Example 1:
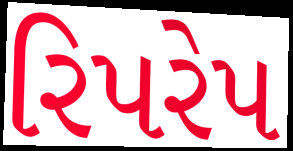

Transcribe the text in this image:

રિપરેપ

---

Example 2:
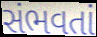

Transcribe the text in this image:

સંભવતાં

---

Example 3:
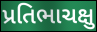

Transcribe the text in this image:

પ્રતિભાચક્ષુ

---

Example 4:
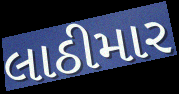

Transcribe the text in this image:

લાઠીમાર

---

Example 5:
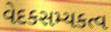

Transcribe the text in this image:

વેદકસમ્યકત્વ